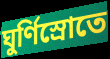
ঘুর্ণিস্রোতে